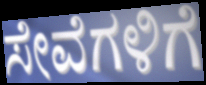
ಸೇವೆಗಳಿಗೆ